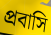
প্রবাসি